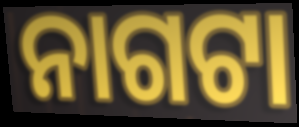
ନାଗଟା